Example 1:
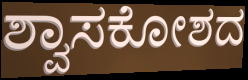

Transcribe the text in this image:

ಶ್ವಾಸಕೋಶದ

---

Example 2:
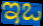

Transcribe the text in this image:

ಇಒ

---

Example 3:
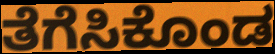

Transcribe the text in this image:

ತೆಗೆಸಿಕೊಂಡ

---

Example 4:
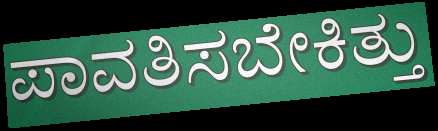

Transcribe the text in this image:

ಪಾವತಿಸಬೇಕಿತ್ತು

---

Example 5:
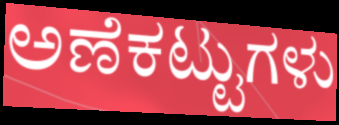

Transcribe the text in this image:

ಅಣೆಕಟ್ಟುಗಳು